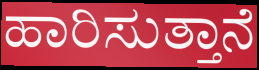
ಹಾರಿಸುತ್ತಾನೆ